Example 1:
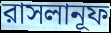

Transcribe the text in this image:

রাসলানূফ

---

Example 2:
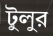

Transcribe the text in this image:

টুলুর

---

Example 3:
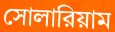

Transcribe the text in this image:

সোলারিয়াম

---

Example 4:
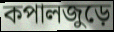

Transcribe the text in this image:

কপালজুড়ে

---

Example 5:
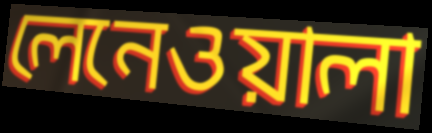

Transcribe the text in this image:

লেনেওয়ালা